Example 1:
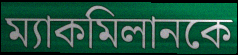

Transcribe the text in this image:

ম্যাকমিলানকে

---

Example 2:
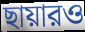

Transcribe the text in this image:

ছায়ারও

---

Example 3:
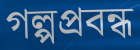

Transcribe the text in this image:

গল্পপ্রবন্ধ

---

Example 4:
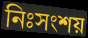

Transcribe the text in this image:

নিঃসংশয়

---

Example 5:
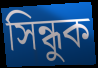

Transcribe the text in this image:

সিন্ধুক